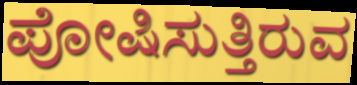
ಪೋಷಿಸುತ್ತಿರುವ